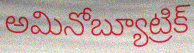
అమినోబ్యూట్రిక్